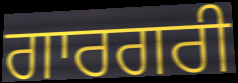
ਗਾਰਗਰੀ